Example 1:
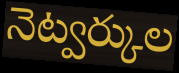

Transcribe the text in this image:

నెట్వర్కుల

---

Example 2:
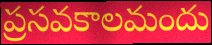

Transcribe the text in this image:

ప్రసవకాలమందు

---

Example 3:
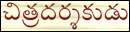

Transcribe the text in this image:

చిత్రదర్శకుడు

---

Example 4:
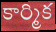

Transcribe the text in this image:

కార్మిక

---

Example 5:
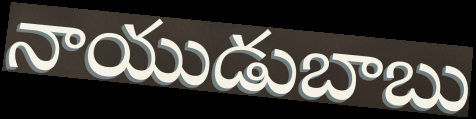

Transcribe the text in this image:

నాయుడుబాబు